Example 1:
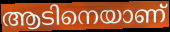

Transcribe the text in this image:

ആടിനെയാണ്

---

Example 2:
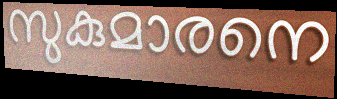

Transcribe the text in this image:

സുകുമാരനെ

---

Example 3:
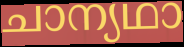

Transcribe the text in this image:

ചാന്യഥാ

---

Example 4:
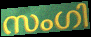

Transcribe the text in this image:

സംഗി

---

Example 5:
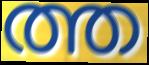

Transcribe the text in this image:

ത്ത